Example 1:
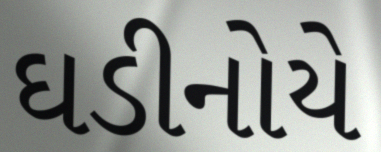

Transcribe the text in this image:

ઘડીનોયે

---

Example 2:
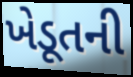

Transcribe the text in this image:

ખેડૂતની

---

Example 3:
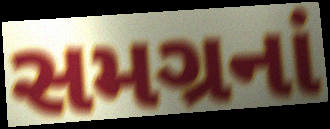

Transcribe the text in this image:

સમગ્રનાં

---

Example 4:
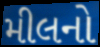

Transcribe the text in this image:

મીલનો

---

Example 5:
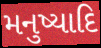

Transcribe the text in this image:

મનુષ્યાદિ